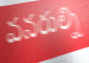
వనరుల్ని